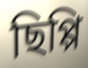
ছিপ্পি